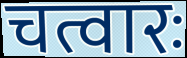
चत्वारः